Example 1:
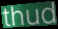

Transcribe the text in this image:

thud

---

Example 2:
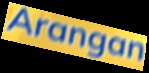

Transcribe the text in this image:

Arangan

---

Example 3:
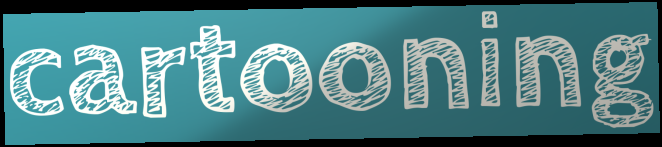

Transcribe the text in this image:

cartooning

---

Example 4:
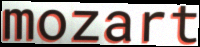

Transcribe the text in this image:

mozart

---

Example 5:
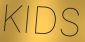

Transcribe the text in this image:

KIDS